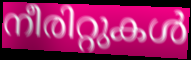
നീരിറ്റുകൾ